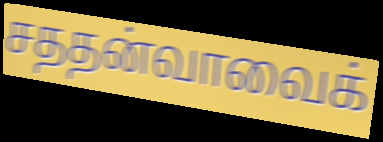
சததன்வாவைக்